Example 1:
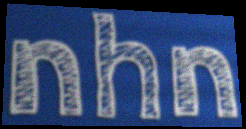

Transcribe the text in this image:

nhn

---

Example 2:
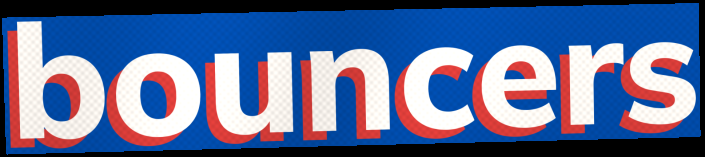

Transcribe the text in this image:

bouncers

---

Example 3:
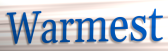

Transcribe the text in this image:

Warmest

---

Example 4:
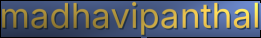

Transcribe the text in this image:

madhavipanthal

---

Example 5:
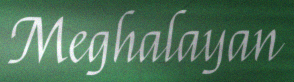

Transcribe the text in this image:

Meghalayan